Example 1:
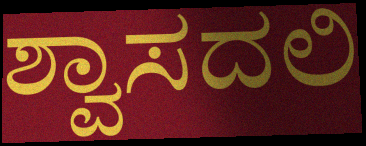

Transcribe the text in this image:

ಶ್ವಾಸದಲಿ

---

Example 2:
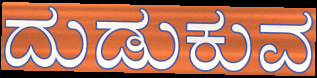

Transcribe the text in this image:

ದುಡುಕುವ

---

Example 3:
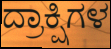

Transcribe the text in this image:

ದ್ರಾಕ್ಷಿಗಳ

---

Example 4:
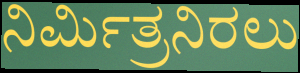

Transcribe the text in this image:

ನಿರ್ಮಿತ್ರನಿರಲು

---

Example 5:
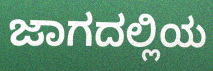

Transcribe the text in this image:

ಜಾಗದಲ್ಲಿಯ